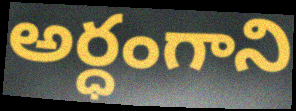
అర్ధంగాని